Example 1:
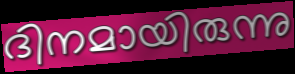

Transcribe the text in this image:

ദിനമായിരുന്നു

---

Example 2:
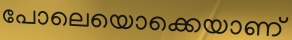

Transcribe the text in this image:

പോലെയൊക്കെയാണ്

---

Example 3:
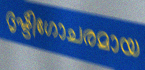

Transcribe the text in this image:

ദൃഷ്ടിഗോചരമായ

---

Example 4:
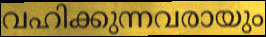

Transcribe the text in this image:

വഹിക്കുന്നവരായും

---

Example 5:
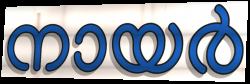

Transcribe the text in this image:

നായർ